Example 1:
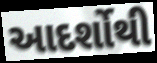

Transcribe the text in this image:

આદર્શોથી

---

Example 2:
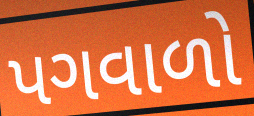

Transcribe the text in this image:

પગવાળો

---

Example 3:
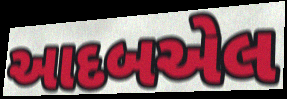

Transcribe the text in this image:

આદબએલ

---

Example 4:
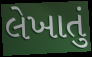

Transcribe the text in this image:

લેખાતું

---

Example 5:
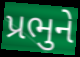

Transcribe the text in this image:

પ્રભુને